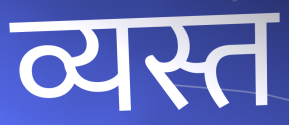
व्यस्त